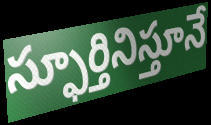
స్ఫూర్తినిస్తూనే